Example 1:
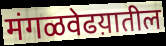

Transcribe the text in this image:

मंगळवेढय़ातील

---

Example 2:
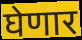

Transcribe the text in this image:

घेणार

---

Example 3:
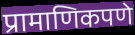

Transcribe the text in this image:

प्रामाणिकपणे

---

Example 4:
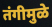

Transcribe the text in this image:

तंगीमुळे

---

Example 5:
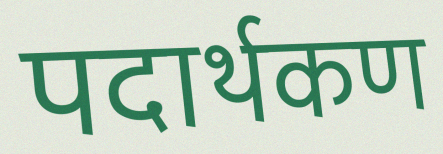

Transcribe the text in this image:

पदार्थकण